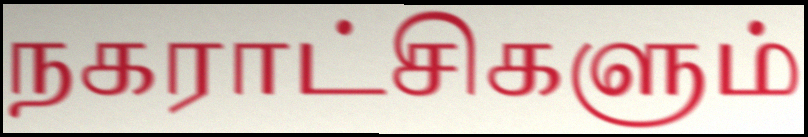
நகராட்சிகளும்